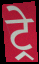
ट्रे